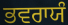
ਭਵਰਾਯੰ